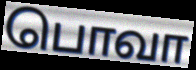
பொவா